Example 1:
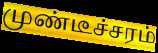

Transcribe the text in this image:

முண்டீச்சரம்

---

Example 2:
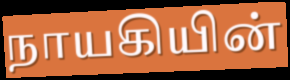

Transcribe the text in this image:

நாயகியின்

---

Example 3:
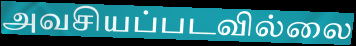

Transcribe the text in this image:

அவசியப்படவில்லை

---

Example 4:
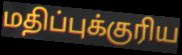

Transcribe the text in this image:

மதிப்புக்குரிய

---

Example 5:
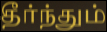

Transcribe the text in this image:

தீர்ந்தும்